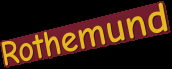
Rothemund